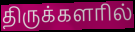
திருக்களரில்